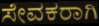
ಸೇವಕರಾಗಿ